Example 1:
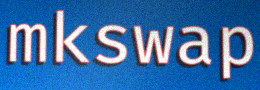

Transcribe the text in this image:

mkswap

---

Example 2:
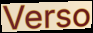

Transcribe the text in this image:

Verso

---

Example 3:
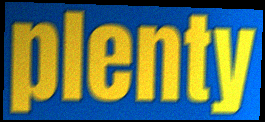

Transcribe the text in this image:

plenty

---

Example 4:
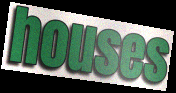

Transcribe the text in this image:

houses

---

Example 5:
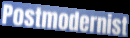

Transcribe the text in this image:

Postmodernist